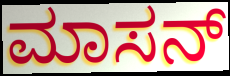
ಮಾಸನ್